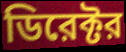
ডিরেক্টর